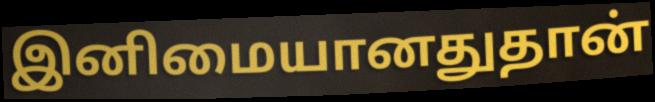
இனிமையானதுதான்